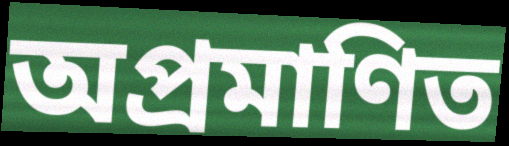
অপ্ৰমাণিত